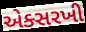
એક્સરખી